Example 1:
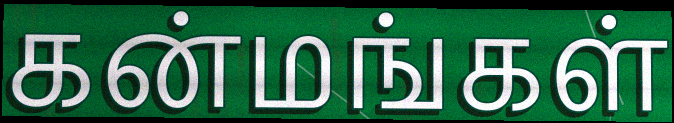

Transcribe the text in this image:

கன்மங்கள்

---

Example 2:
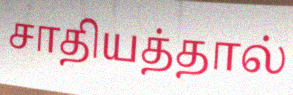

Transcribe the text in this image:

சாதியத்தால்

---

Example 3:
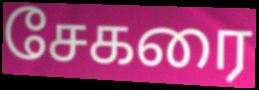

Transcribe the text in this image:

சேகரை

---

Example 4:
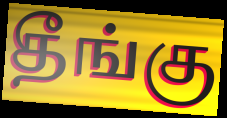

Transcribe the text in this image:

தீங்கு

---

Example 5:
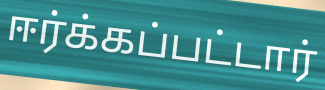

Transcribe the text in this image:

ஈர்க்கப்பட்டார்